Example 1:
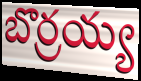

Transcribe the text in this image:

బొర్రయ్య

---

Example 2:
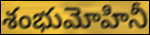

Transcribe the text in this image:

శంభుమోహినీ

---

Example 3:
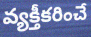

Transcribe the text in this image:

వ్యక్తీకరించే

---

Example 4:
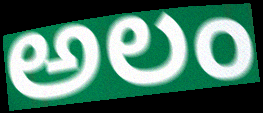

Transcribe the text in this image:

అలం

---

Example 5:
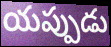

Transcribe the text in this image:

యప్పుడు